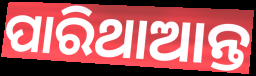
ପାରିଥାଆନ୍ତ